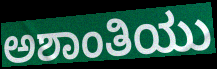
ಅಶಾಂತಿಯು